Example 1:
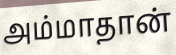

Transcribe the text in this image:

அம்மாதான்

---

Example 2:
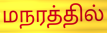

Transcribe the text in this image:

மநரத்தில்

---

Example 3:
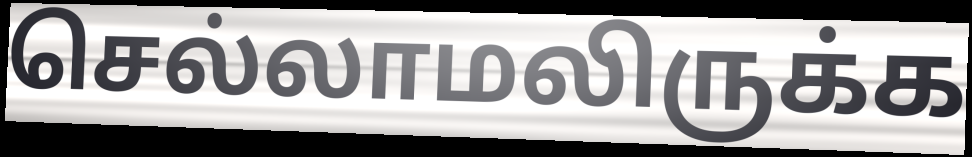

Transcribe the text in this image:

செல்லாமலிருக்க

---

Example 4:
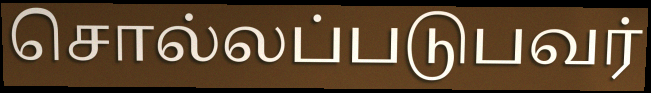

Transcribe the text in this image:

சொல்லப்படுபவர்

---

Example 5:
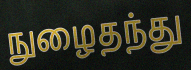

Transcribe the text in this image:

நுழைதந்து